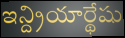
ఇన్ద్రియార్థేషు